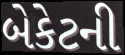
બેકેટની